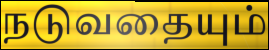
நடுவதையும்